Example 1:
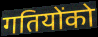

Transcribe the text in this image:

गतियोंको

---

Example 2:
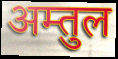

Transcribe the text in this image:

अम्तुल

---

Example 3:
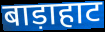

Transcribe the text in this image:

बाड़ाहाट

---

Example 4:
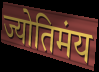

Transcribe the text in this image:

ज्योतिमंय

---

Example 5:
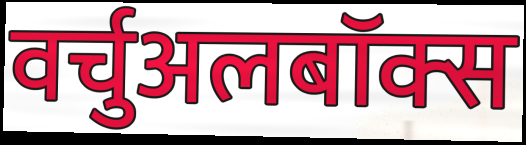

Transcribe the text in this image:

वर्चुअलबॉक्स